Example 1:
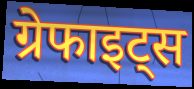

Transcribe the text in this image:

ग्रेफाइट्स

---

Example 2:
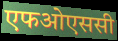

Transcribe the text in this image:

एफओएससी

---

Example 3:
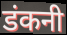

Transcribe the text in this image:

डंकनी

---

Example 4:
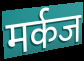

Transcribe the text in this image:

मर्कज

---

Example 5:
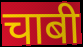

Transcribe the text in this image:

चाबी